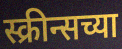
स्क्रीन्सच्या